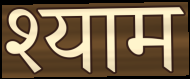
श्याम